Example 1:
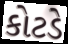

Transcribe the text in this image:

કોટડે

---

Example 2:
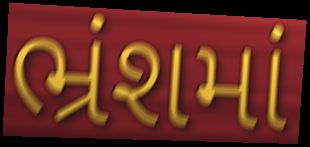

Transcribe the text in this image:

ભ્રંશમાં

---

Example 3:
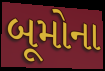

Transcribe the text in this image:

બૂમોના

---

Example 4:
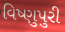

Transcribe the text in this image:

વિષ્ણુપુરી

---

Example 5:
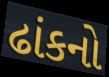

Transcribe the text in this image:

ઢાંકનો